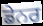
ਡੇਨਰ